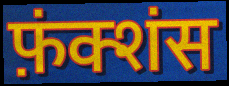
फ़ंक्शंस